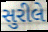
સુરીલે